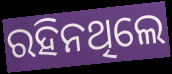
ରହିନଥିଲେ